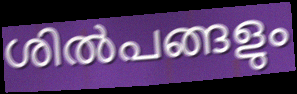
ശിൽപങ്ങളും